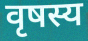
वृषस्य